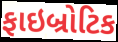
ફાઇબ્રોટિક